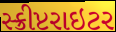
સ્ક્રીપ્ટરાઇટર